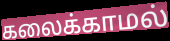
கலைக்காமல்